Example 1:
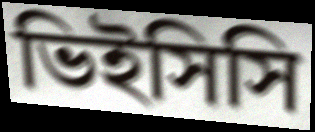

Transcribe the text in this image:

ভিইসিসি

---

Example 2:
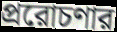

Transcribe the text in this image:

প্ররোচণার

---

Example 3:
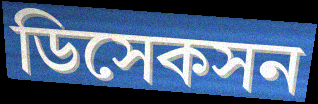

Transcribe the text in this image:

ডিসেকসন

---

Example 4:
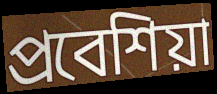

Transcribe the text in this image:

প্রবেশিয়া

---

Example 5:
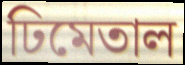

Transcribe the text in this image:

ঢিমেতাল